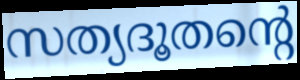
സത്യദൂതന്റെ